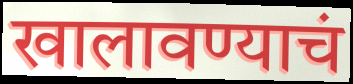
खालावण्याचं